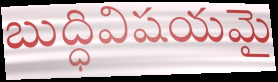
బుద్ధివిషయమై